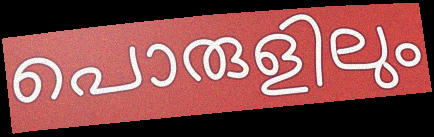
പൊരുളിലും